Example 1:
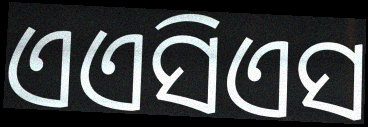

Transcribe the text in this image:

ଏଏସିଏସ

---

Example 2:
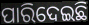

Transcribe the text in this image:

ପାରିଦେଇଛି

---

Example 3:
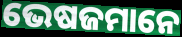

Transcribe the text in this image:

ଭେଷଜମାନେ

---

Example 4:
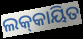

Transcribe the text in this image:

ଲକ୍‌କାୟିତ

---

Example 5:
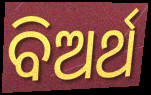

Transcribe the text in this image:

ବିଅର୍ଥ